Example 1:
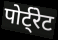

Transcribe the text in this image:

पोर्ट्रेट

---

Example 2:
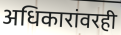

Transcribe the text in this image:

अधिकारांवरही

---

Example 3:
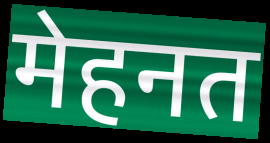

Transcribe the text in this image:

मेहनत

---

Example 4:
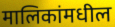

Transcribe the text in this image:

मालिकांमधील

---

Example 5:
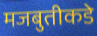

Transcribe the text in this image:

मजबुतीकडे